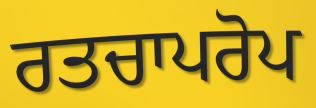
ਰਤਚਾਪਰੋਪ